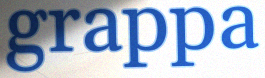
grappa